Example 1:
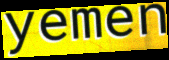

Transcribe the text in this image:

yemen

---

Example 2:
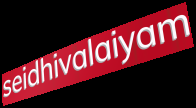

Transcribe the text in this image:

seidhivalaiyam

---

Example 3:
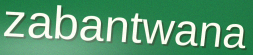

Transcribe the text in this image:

zabantwana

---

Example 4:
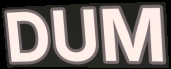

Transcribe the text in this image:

DUM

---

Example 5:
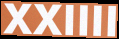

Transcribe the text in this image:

XXIIII